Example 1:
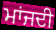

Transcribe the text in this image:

ਮਾਂਜਦੀ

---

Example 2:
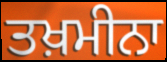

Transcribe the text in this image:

ਤਖ਼ਮੀਨਾ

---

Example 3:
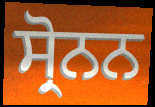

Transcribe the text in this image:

ਸ੍ਰੋਨਨ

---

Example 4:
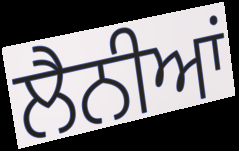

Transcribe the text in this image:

ਲੈਨੀਆਂ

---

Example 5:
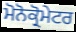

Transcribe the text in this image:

ਮੋਨੋਕ੍ਰੋਮੇਟਰ